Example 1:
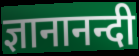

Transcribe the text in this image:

ज्ञानानन्दी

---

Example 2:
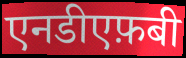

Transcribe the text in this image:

एनडीएफ़बी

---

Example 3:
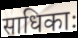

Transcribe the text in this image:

साधिकाः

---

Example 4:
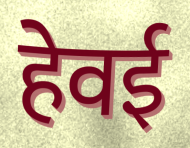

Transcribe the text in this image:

हेवई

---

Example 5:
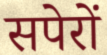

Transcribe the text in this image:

सपेरों